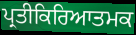
ਪ੍ਰਤੀਕਿਰਿਆਤਮਕ